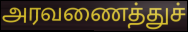
அரவணைத்துச்